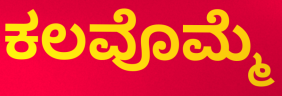
ಕಲವೊಮ್ಮೆ